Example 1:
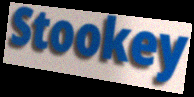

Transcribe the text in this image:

Stookey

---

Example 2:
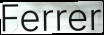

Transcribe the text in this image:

Ferrer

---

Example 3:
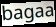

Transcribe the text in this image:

bagaa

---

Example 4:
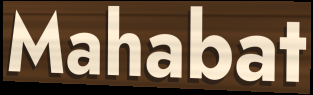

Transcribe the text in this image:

Mahabat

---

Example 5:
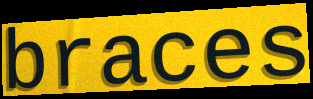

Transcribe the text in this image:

braces